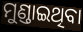
ମୁଣ୍ଡାଇଥିବା